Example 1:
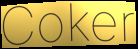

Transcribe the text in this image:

Coker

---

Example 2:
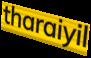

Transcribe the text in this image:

tharaiyil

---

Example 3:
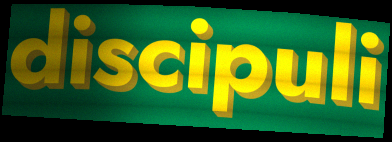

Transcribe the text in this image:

discipuli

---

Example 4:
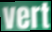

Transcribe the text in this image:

vert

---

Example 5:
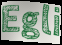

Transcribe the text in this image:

Egli